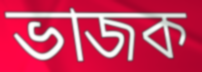
ভাজক